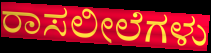
ರಾಸಲೀಲೆಗಳು